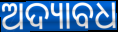
ଅଦ୍ୟାବଧ